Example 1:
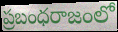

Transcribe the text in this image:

ప్రబంధరాజంలో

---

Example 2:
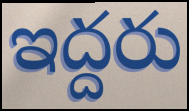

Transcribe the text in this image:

ఇద్దరు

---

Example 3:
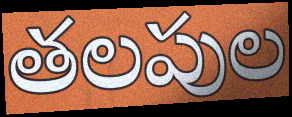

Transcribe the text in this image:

తలపుల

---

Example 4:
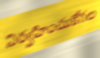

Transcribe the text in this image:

నిర్వహించుకోగల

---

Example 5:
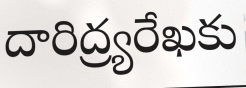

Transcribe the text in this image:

దారిద్ర్యరేఖకు